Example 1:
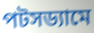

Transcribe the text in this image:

পটসড্যামে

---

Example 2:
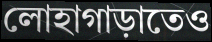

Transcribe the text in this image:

লোহাগাড়াতেও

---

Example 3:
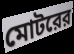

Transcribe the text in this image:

মোটরের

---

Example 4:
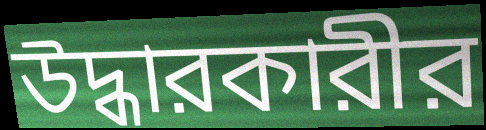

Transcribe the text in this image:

উদ্ধারকারীর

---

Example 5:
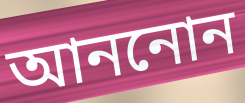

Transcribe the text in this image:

আননোন